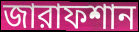
জারাফশান